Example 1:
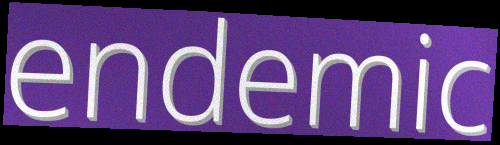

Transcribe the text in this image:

endemic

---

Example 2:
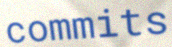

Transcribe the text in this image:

commits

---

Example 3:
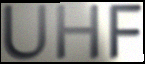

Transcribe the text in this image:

UHF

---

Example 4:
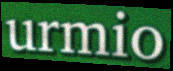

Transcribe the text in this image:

urmio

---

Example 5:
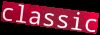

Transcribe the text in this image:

classic